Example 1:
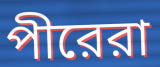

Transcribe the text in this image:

পীরেরা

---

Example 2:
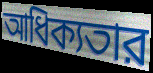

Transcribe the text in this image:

আধিক্যতার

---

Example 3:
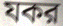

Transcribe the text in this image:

যকর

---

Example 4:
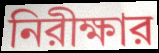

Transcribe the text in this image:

নিরীক্ষার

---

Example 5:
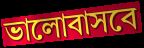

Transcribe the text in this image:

ভালোবাসবে